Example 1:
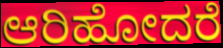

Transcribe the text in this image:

ಆರಿಹೋದರೆ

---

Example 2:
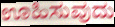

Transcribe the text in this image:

ಊಹಿಸುವುದು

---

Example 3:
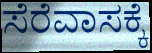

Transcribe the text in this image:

ಸೆರೆವಾಸಕ್ಕೆ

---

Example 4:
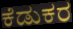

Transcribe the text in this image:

ಕೆಡುಕರ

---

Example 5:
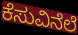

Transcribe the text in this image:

ಕೆಸುವಿನೆಲೆ